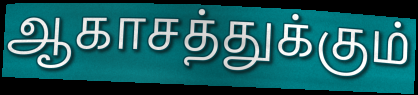
ஆகாசத்துக்கும்